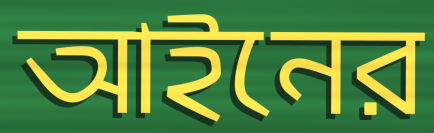
আইনের